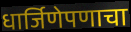
धार्जिणेपणाचा